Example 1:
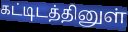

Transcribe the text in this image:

கட்டிடத்தினுள்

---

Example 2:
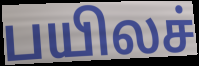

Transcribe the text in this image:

பயிலச்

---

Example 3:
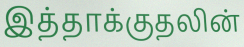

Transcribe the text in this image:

இத்தாக்குதலின்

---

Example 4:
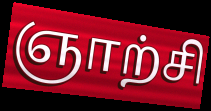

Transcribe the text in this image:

ஞாற்சி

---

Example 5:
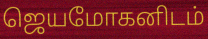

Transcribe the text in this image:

ஜெயமோகனிடம்